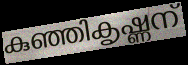
കുഞ്ഞികൃഷ്ണന്